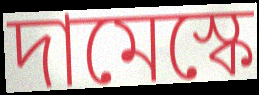
দামেস্কে